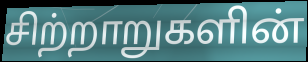
சிற்றாறுகளின்